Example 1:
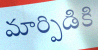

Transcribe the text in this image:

మార్పిడికి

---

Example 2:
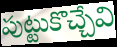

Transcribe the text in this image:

పుట్టుకొచ్చేవి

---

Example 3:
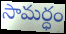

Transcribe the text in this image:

సామర్ధం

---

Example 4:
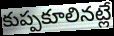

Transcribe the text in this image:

కుప్పకూలినట్లే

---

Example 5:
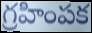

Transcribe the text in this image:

గ్రహింపక